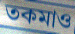
তকমাও